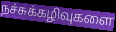
நச்சுக்கழிவுகளை